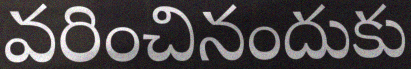
వరించినందుకు